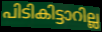
പിടികിട്ടാറില്ല